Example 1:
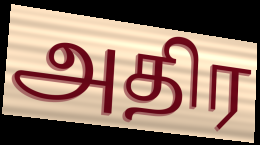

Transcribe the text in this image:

அதிர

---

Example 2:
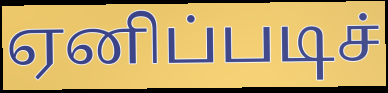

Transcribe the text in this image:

ஏனிப்படிச்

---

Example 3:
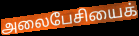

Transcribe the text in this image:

அலைபேசியைக்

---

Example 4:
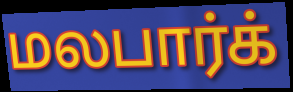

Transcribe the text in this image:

மலபார்க்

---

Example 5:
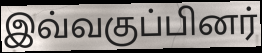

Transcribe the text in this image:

இவ்வகுப்பினர்